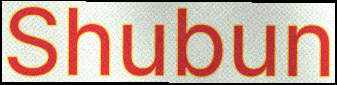
Shubun